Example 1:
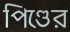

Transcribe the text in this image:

পিণ্ডের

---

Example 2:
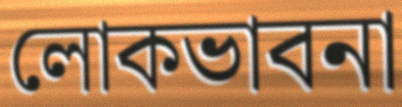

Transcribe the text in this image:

লোকভাবনা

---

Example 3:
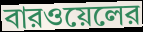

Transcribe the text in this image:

বারওয়েলের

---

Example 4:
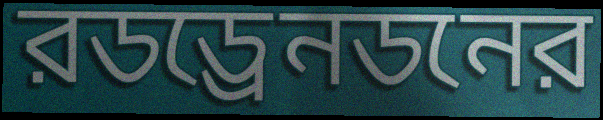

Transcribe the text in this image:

রডড্রেনডনের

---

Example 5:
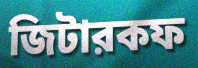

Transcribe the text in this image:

জিটারকফ